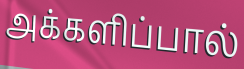
அக்களிப்பால்